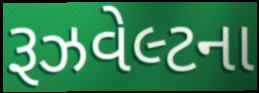
રૂઝવેલ્ટના